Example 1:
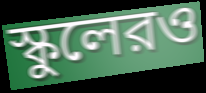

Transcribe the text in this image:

স্কুলেরও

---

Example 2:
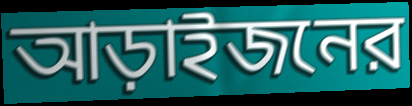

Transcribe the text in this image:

আড়াইজনের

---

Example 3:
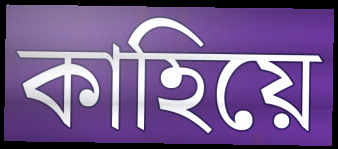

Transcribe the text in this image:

কাহিয়ে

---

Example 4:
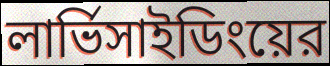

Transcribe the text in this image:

লার্ভিসাইডিংয়ের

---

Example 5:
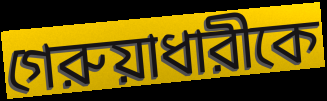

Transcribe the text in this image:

গেরুয়াধারীকে